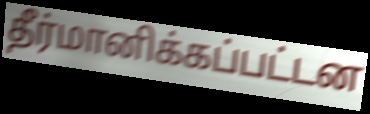
தீர்மானிக்கப்பட்டன